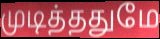
முடித்ததுமே